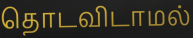
தொடவிடாமல்